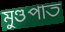
মুণ্ডপাত